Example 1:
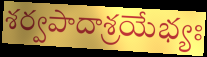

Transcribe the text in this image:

శర్వపాదాశ్రయేభ్యః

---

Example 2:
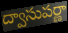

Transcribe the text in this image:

ద్వాసుపర్ణా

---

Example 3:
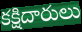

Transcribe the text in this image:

కక్షిదారులు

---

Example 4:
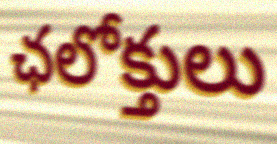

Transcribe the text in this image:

ఛలోక్తులు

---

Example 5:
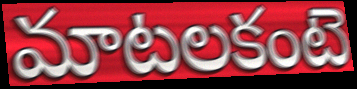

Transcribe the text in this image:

మాటలకంటె